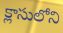
క్లాసులోని